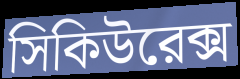
সিকিউরেক্স